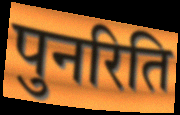
पुनरिति